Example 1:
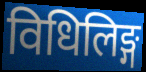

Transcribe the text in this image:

विधिलिङ्ग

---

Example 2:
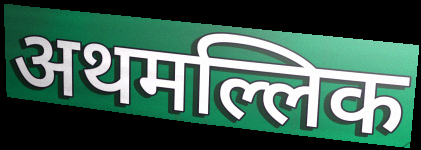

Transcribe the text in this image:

अथमल्लिक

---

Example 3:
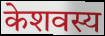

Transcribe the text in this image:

केशवस्य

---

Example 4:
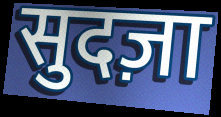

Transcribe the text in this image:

सुदज़ा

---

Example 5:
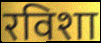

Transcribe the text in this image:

रविशा